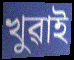
খুৱাই